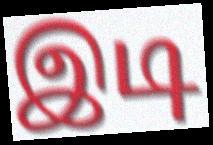
இடி